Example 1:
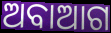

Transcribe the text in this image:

ଅବାଆଗ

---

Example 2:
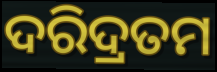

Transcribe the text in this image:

ଦରିଦ୍ରତମ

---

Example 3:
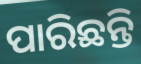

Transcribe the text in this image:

ପାରିଛନ୍ତି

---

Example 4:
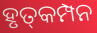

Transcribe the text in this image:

ହୃତ୍‌କମ୍ପନ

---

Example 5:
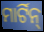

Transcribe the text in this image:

ମାର୍ଟିନ୍